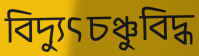
বিদ্যুৎচঞ্চুবিদ্ধ